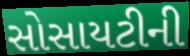
સોસાયટીની